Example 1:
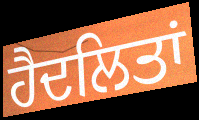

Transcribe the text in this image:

ਹੈਦਲਿਤਾਂ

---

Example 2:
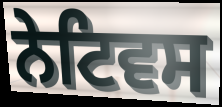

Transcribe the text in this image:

ਨੇਟਿਵਸ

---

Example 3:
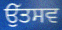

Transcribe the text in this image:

ਉੱਤਸਵ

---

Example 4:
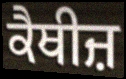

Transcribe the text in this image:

ਕੈਥੀਜ਼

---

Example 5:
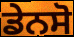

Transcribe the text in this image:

ਡੇਨਸੋ